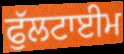
ਫੁੱਲਟਾਈਮ